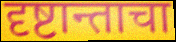
दृष्टान्ताचा